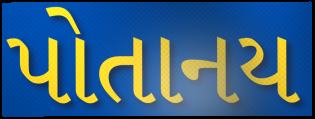
પોતાનય